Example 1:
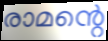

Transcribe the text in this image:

രാമന്റെ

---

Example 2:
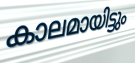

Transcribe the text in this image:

കാലമായിട്ടും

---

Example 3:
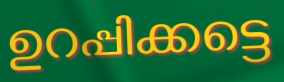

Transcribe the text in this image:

ഉറപ്പിക്കട്ടെ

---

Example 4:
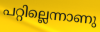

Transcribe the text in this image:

പറ്റില്ലെന്നാണു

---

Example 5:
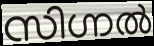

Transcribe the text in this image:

സിഗ്നൽ